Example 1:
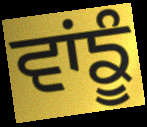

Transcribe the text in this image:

ਵਾਂਙੂੰ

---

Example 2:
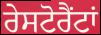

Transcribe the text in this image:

ਰੇਸਟੋਰੈਂਟਾਂ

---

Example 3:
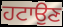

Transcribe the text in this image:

ਹਟਾਉਣ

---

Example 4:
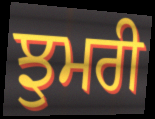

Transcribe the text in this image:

ਝੁਮਰੀ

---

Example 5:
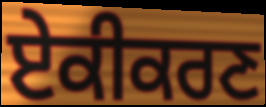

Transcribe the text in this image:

ਏਕੀਕਰਣ